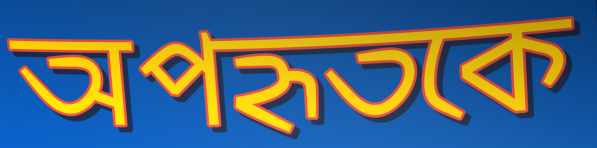
অপহৃতকে